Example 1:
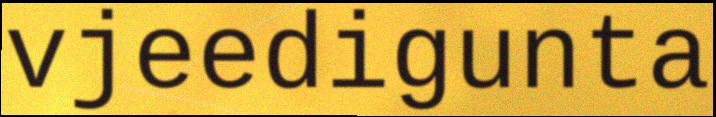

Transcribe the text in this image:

vjeedigunta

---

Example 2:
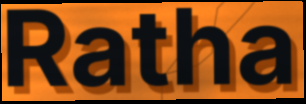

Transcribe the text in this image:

Ratha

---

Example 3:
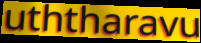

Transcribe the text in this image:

uththaravu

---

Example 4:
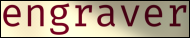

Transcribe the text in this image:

engraver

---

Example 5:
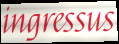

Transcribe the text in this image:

ingressus